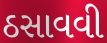
ઠસાવવી